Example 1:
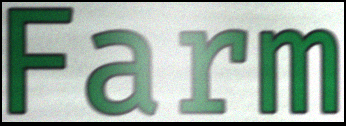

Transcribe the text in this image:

Farm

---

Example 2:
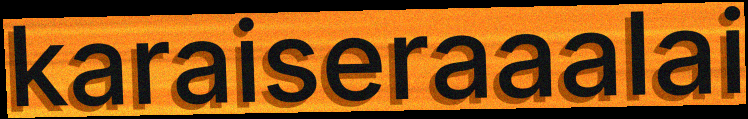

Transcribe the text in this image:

karaiseraaalai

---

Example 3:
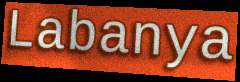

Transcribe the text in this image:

Labanya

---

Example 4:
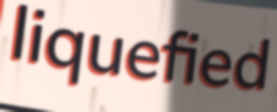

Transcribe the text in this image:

liquefied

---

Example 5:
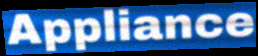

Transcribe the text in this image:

Appliance